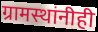
ग्रामस्थांनीही